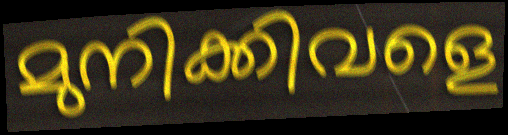
മുനിക്കിവളെ